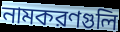
নামকরণগুলি